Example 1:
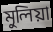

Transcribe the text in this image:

মুলিয়া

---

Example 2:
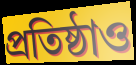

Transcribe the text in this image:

প্রতিষ্ঠাও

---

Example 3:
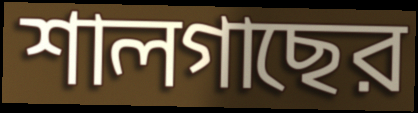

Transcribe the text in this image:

শালগাছের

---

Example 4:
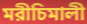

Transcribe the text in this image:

মরীচিমালী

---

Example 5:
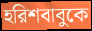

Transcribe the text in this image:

হরিশবাবুকে